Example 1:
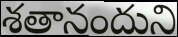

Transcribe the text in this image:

శతానందుని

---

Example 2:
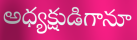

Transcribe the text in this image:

అధ్యక్షుడిగానూ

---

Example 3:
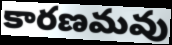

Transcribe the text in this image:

కారణమవు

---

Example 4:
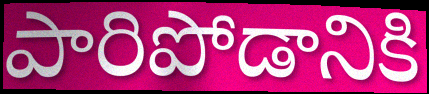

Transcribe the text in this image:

పారిపోడానికి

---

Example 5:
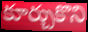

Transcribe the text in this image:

కూర్చుకొని